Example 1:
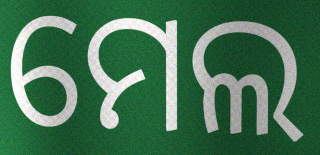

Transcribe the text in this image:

ମେଲ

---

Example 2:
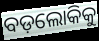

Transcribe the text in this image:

ବଡ଼ଲୋକିକୁ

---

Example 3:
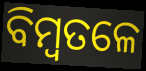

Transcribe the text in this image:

ବିମ୍ବତଳେ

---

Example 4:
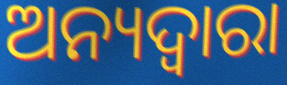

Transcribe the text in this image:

ଅନ୍ୟଦ୍ୱାରା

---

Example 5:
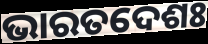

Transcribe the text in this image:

ଭାରତଦେଶଃ